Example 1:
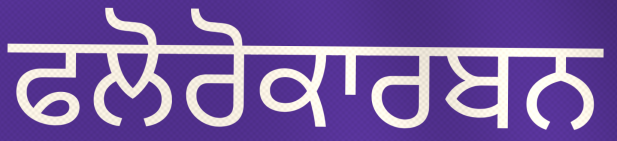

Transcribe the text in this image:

ਫਲੋਰੋਕਾਰਬਨ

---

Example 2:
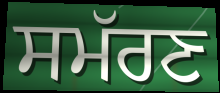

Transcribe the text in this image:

ਸਮੱਰਣ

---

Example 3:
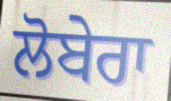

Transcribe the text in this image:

ਲੋਬੇਰਾ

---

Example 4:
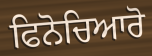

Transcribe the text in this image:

ਫਿਨੋਚਿਆਰੋ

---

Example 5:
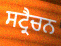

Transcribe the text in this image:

ਸਟ੍ਰੈਚਨ